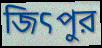
জিৎপুর